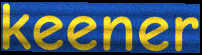
keener